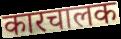
कारचालक